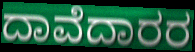
ದಾವೆದಾರರ